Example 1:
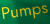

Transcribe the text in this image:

Pumps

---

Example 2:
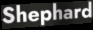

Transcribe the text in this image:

Shephard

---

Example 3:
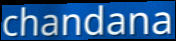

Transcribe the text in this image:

chandana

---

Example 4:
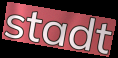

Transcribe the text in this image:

stadt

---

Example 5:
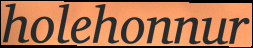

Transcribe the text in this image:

holehonnur